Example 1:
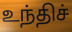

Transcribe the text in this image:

உந்திச்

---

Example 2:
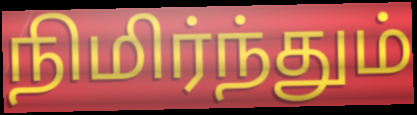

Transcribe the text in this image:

நிமிர்ந்தும்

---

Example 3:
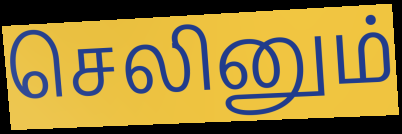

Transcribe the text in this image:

செலினும்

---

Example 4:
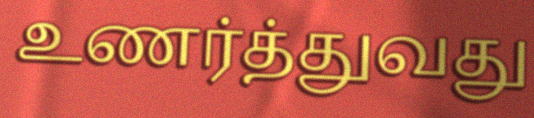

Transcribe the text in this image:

உணர்த்துவது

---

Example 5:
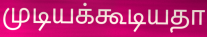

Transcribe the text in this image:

முடியக்கூடியதா